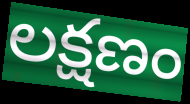
లక్షణం